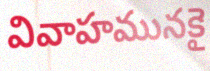
వివాహమునకై